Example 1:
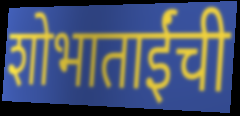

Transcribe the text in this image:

शोभाताईंची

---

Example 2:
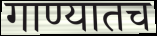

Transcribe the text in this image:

गाण्यातच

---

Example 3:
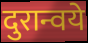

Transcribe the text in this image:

दुरान्वये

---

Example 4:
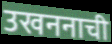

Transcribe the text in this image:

उखननाची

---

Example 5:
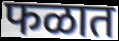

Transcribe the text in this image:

फळात